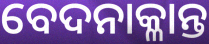
ବେଦନାକ୍ଳାନ୍ତ